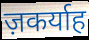
ज़कर्याह